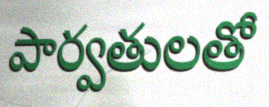
పార్వతులతో